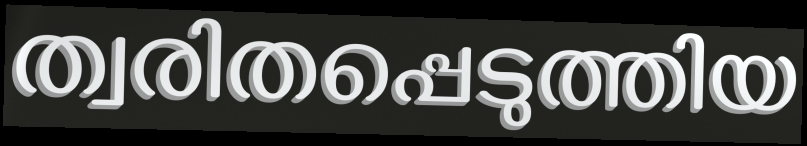
ത്വരിതപ്പെടുത്തിയ